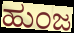
ಹುಂಜ